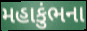
મહાકુંભના